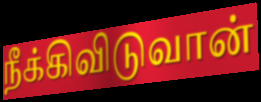
நீக்கிவிடுவான்